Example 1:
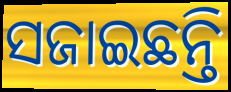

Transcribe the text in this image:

ସଜାଇଛନ୍ତି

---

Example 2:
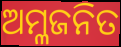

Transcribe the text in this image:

ଅମ୍ଳଜନିତ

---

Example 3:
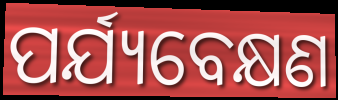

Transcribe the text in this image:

ପର୍ଯ୍ୟବେକ୍ଷଣ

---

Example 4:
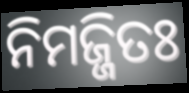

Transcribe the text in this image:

ନିମଜ୍ଜିତଃ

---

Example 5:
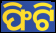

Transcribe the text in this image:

ଫିଟି